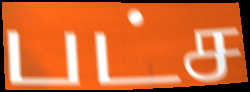
பட்ச